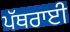
ਪੱਥਰਾਈ